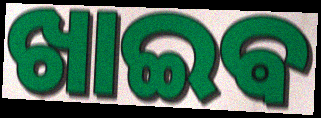
ଖାଇଵ